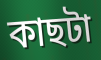
কাছটা